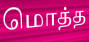
மொத்த